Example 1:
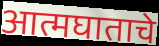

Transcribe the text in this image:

आत्मघाताचे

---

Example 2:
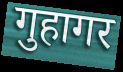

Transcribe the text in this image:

गुहागर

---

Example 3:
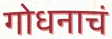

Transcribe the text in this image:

गोधनाचं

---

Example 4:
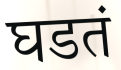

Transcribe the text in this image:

घडतं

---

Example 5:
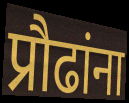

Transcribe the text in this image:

प्रौढांना